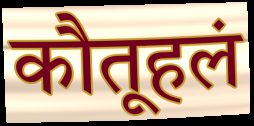
कौतूहलं